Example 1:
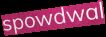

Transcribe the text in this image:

spowdwal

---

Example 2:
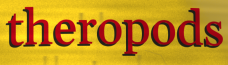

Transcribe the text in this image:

theropods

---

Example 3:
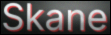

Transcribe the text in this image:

Skane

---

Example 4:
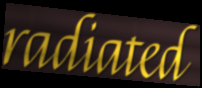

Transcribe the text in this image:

radiated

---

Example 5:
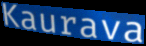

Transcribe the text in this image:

Kaurava